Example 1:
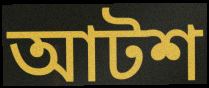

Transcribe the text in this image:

আটশ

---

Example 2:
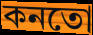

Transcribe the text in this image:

কনতো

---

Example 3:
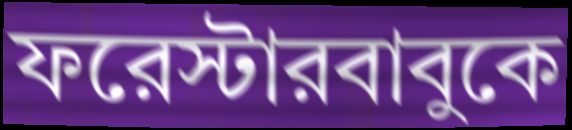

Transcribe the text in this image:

ফরেস্টারবাবুকে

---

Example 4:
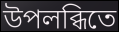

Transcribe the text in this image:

উপলব্ধিতে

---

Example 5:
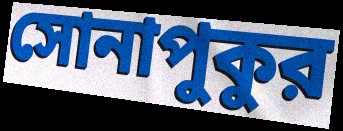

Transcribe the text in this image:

সোনাপুকুর